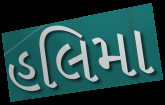
હલિમા